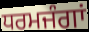
ਧਰਮਜੰਗਾਂ